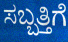
ಸಬ್ಬತ್ತಿಗೆ